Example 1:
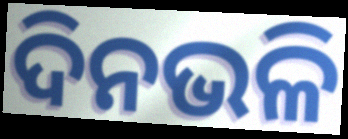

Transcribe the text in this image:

ଦିନଭଳି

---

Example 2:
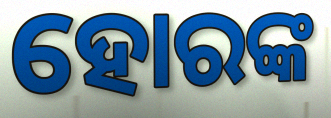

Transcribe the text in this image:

ହୋରଙ୍କ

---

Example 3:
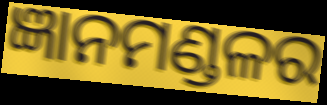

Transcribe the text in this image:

ଜ୍ଞାନମଣ୍ଡଳର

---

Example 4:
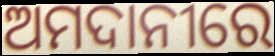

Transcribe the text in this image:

ଅମଦାନୀରେ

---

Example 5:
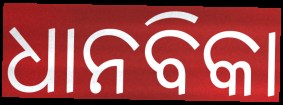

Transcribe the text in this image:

ଧାନବିକା